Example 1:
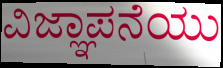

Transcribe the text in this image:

ವಿಜ್ಞಾಪನೆಯು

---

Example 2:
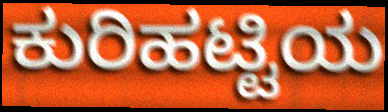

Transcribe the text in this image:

ಕುರಿಹಟ್ಟಿಯ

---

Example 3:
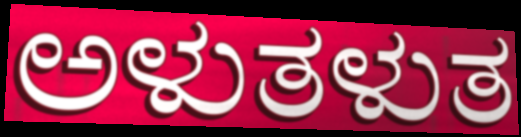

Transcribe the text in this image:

ಅಳುತಳುತ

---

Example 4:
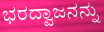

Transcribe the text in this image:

ಭರದ್ವಾಜನನ್ನು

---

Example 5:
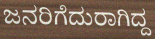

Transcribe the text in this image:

ಜನರಿಗೆದುರಾಗಿದ್ದ